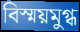
বিস্ময়মুগ্ধ